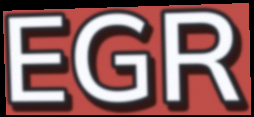
EGR